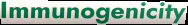
Immunogenicity